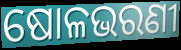
ଷୋଳଭରଣୀ